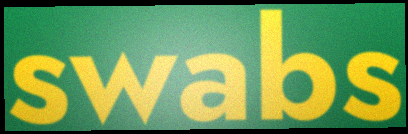
swabs